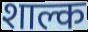
शाल्क